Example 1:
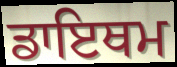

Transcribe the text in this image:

ਡਾਇਥਮ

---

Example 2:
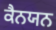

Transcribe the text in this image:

ਕੈਨਯਨ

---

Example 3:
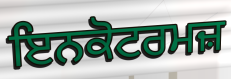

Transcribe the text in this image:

ਇਨਕੋਟਰਮਜ਼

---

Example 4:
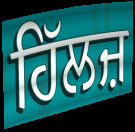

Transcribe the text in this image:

ਹਿੱਲਜ਼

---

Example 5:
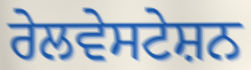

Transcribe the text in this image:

ਰੇਲਵੇਸਟੇਸ਼ਨ